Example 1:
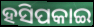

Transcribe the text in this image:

ହସିପକାଇ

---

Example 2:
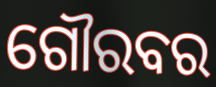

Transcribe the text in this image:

ଗୌରବର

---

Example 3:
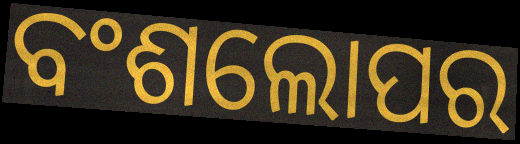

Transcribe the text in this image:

ବଂଶଲୋପର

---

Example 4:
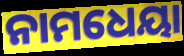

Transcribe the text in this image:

ନାମଧେୟା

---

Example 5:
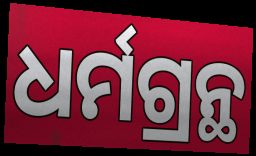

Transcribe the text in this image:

ଧର୍ମଗ୍ରନ୍ଥ